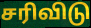
சரிவிடு